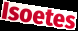
Isoetes